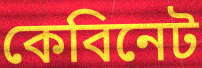
কেবিনেট